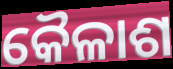
କୈଳାଶ